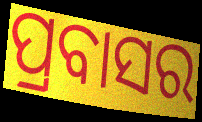
ପ୍ରବାସର